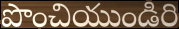
పొంచియుండిరి